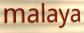
malaya